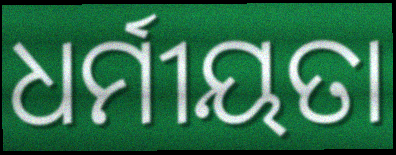
ଧର୍ମୀୟତା